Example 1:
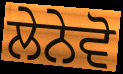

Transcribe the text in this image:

ਲੇਨੇਵੋ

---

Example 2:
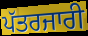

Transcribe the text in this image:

ਪੱਤਰਜਾਰੀ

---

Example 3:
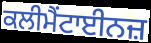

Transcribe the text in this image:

ਕਲੀਮੈਂਟਾਈਨਜ਼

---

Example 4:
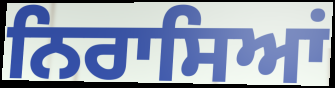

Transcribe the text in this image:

ਨਿਰਾਸਿਆਂ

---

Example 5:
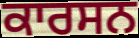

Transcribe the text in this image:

ਕਾਰਸਨ